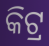
କିଟ୍ର